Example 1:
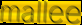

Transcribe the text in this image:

mallee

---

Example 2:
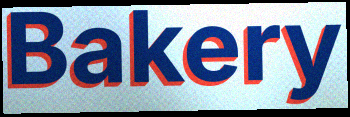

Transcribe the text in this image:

Bakery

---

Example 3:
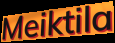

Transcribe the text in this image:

Meiktila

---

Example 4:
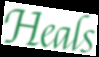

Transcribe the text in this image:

Heals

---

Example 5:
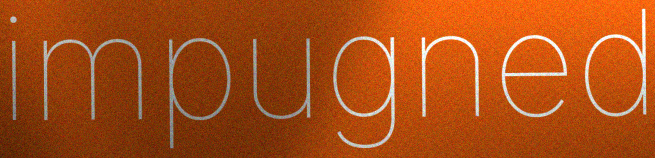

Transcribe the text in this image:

impugned